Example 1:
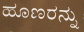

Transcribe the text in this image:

ಹೂಣರನ್ನು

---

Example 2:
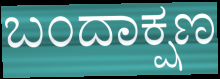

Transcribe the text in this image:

ಬಂದಾಕ್ಷಣ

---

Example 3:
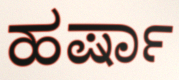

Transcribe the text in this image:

ಹರ್ಷಾ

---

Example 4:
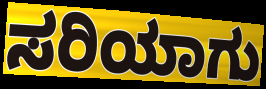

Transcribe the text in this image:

ಸರಿಯಾಗು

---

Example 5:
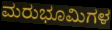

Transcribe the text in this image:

ಮರುಭೂಮಿಗಳ